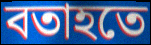
বতাহতে